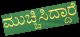
ಮುಚ್ಚಿಸಿದ್ದಾರೆ